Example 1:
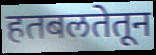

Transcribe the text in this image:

हतबलतेतून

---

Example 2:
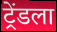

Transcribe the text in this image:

ट्रेंडला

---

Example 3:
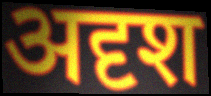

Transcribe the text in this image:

अदृश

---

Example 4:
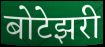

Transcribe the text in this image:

बोटेझरी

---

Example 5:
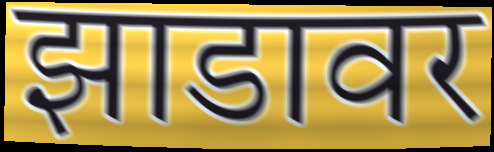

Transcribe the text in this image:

झाडावर